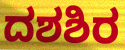
ದಶಶಿರ